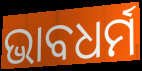
ଭାବଧର୍ମ